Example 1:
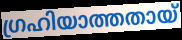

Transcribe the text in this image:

ഗ്രഹിയാത്തതായ്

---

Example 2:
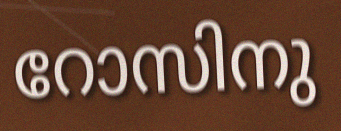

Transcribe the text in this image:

റോസിനു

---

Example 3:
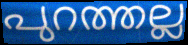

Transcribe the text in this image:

പുറത്തല്ല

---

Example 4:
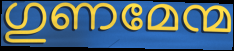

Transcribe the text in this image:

ഗുണമേന്മ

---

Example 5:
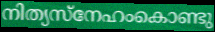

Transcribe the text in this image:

നിത്യസ്നേഹംകൊണ്ടു